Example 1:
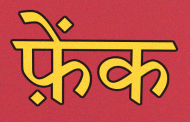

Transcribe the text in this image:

फ़ेंक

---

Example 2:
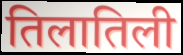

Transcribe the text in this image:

तिलातिली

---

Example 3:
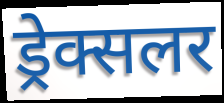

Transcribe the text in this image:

ड्रेक्सलर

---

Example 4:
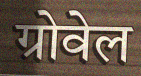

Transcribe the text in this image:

ग्रोवेल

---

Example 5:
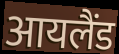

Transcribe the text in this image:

आयलैंड